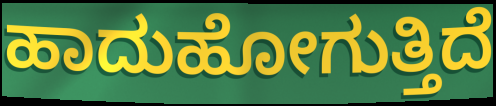
ಹಾದುಹೋಗುತ್ತಿದೆ